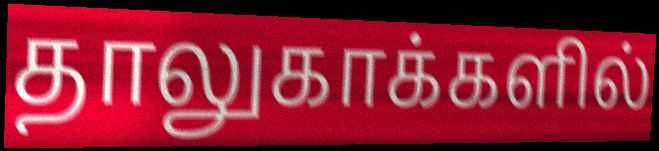
தாலுகாக்களில்